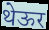
थेऊर